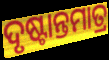
ଦୃଷ୍ଟାନ୍ତମାତ୍ର